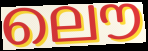
ലൌ